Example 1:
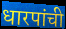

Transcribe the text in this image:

धारपांची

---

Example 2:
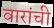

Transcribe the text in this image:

वारांची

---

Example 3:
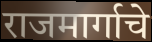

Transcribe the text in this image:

राजमार्गाचे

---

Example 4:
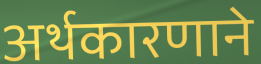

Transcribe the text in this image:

अर्थकारणाने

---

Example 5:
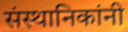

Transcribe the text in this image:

संस्थानिकांनी